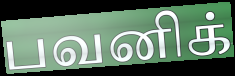
பவனிக்